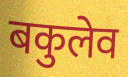
बकुलेव